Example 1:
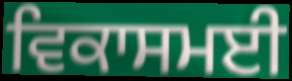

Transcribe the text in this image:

ਵਿਕਾਸਮਈ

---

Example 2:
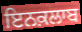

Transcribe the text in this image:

ਇਨਕ਼ਲਾਬ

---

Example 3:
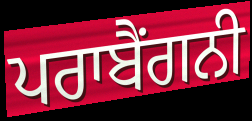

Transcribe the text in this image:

ਪਰਾਬੈਂਗਨੀ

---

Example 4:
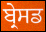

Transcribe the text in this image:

ਬ੍ਰੇਸਡ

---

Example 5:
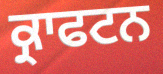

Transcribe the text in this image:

ਕ੍ਰਾਫਟਨ